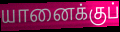
யானைக்குப்